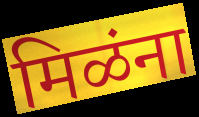
मिळंना